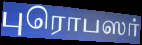
புரொபஸர்